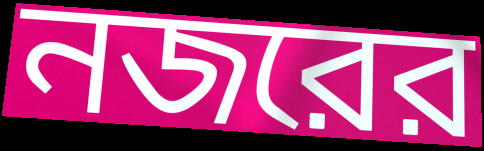
নজরের